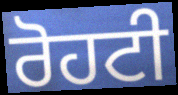
ਰੋਹਟੀ